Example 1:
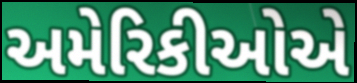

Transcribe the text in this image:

અમેરિકીઓએ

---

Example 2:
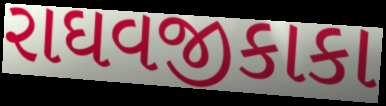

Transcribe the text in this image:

રાઘવજીકાકા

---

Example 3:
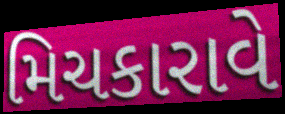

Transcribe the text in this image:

મિચકારાવે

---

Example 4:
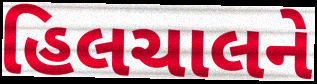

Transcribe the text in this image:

હિલચાલને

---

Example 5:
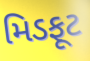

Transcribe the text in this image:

મિડફૂટ